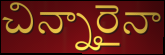
చిన్నారైనా